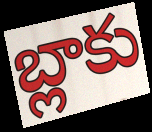
బ్లాకు